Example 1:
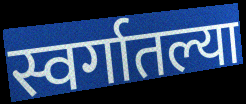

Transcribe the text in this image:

स्वर्गातल्या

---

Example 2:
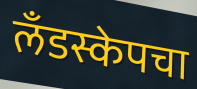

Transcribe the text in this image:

लँडस्केपचा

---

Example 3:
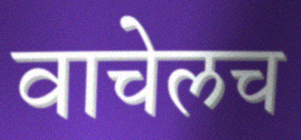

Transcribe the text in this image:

वाचेलच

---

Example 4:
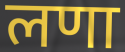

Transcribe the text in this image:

लणा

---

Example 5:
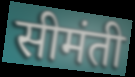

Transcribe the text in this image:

सीमंती